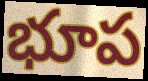
భూప